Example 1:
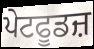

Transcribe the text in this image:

ਪੇਟਫੂਡਜ਼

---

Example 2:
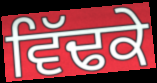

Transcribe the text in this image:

ਵਿੱਢਕੇ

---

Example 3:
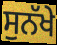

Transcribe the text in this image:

ਸੁਨੱਖੇ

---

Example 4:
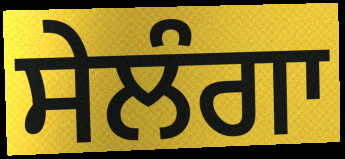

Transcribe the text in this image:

ਸੇਲੰਗਾ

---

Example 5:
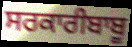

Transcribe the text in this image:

ਸਰਕਾਰੀਬਾਬੂ